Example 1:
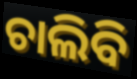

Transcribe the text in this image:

ଚାଲିବି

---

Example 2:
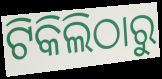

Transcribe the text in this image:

ଟିକିଲିଠାରୁ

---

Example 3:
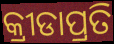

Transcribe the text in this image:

କ୍ରୀଡାପ୍ରତି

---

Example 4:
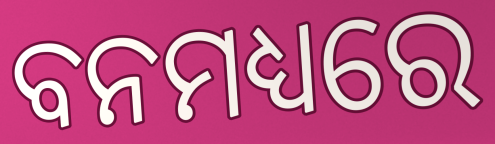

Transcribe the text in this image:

ବନମଧ୍ୟରେ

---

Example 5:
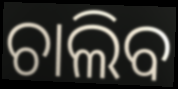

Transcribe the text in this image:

ଚାଲିବ